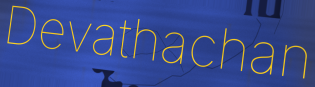
Devathachan